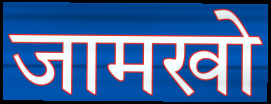
जामखो